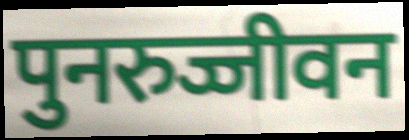
पुनरुज्जीवन